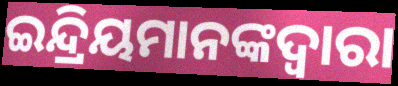
ଇନ୍ଦ୍ରିୟମାନଙ୍କଦ୍ୱାରା